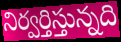
నిర్వర్తిస్తున్నది